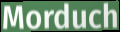
Morduch